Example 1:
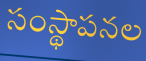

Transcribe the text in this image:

సంస్థాపనల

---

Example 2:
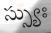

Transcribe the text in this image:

స్స్యుః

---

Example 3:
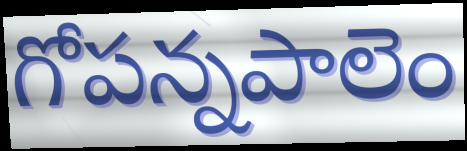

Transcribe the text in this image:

గోపన్నపాలెం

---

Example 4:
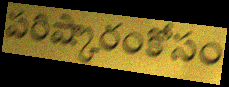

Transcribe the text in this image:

పరిష్కారంకోసం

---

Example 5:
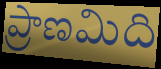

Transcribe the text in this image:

ప్రాణమిది